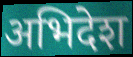
अभिदेश